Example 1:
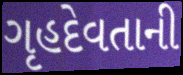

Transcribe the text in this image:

ગૃહદેવતાની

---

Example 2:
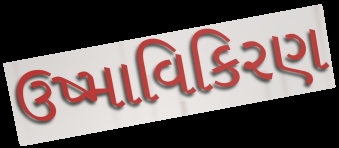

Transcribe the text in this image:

ઉષ્માવિકિરણ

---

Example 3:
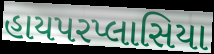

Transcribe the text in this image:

હાયપરપ્લાસિયા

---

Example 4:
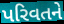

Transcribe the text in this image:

પરિવતને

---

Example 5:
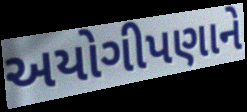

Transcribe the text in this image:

અયોગીપણાને